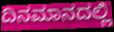
ದಿನಮಾನದಲ್ಲಿ